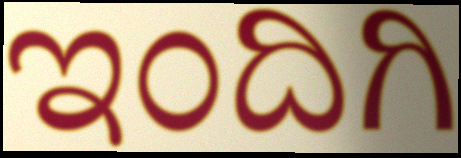
ಇಂದಿಗಿ